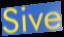
Sive